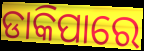
ଡାକିପାରେ